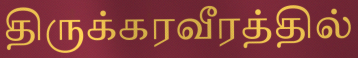
திருக்கரவீரத்தில்